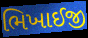
ભિખાઈજી